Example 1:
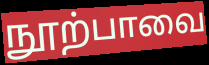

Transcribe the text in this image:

நூற்பாவை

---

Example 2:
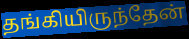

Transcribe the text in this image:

தங்கியிருந்தேன்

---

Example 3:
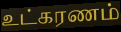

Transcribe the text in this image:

உட்கரணம்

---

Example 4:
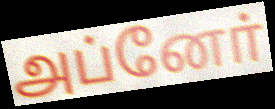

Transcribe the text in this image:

அப்னேர்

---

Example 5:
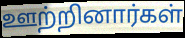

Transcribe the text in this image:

ஊற்றினார்கள்